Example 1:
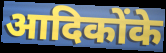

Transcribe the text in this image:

आदिकोंके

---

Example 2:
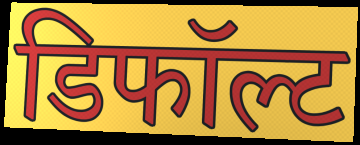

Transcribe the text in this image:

डिफॉल्ट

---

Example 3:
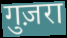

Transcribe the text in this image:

गुज़रा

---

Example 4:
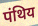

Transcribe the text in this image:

पंथिय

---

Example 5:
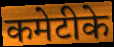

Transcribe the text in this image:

कमेटीके